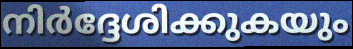
നിർദ്ദേശിക്കുകയും